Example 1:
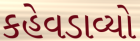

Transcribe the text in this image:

કહેવડાવ્યો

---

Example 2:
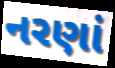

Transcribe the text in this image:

નરણાં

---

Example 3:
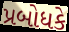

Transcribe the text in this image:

પ્રબોધકે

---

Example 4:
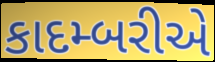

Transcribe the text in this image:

કાદમ્બરીએ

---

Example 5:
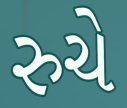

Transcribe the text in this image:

રુચે